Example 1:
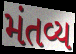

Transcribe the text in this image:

મંતવ્ય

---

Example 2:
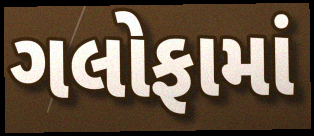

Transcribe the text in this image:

ગલોફામાં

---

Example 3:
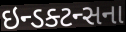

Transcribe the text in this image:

ઇન્ડક્ટન્સના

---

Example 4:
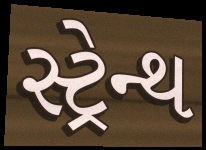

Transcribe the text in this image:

સ્ટ્રેન્થ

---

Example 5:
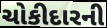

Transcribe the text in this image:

ચોકીદારની